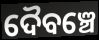
ଦୈବଞ୍ଚେ